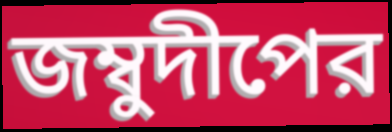
জম্বুদীপের